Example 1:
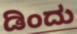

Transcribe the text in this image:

ಡಿಂದು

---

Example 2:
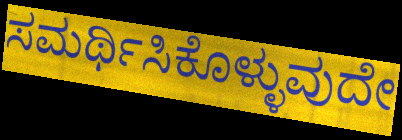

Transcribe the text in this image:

ಸಮರ್ಥಿಸಿಕೊಳ್ಳುವುದೇ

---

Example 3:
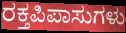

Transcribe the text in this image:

ರಕ್ತಪಿಪಾಸುಗಳು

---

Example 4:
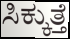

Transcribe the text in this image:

ಸಿಕ್ಕುತ್ತೆ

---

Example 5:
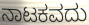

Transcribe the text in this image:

ನಾಟಕವದು